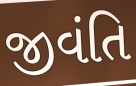
જીવંતિ